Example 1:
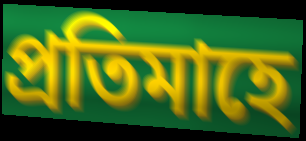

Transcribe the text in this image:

প্ৰতিমাহে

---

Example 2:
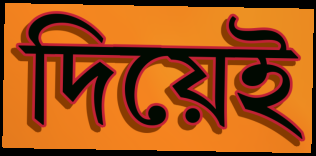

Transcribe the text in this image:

দিয়েই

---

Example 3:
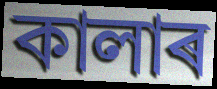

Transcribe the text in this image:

কালাৰ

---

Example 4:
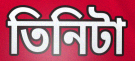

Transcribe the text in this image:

তিনিটা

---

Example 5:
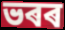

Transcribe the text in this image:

ভৰৰ